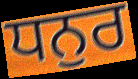
ਧਨੁਰ